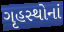
ગૃહસ્થોનાં